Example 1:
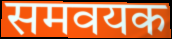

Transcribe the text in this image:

समवयक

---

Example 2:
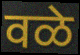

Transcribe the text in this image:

वळे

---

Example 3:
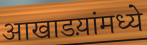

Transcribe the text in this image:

आखाडय़ांमध्ये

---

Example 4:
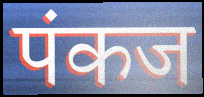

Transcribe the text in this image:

पंकज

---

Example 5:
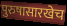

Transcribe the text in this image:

पुरुषासारखेच